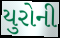
યુરોની